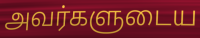
அவர்களுடைய